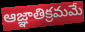
ఆజ్ఞాతిక్రమమే